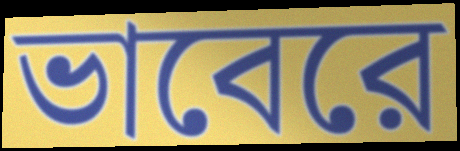
ভাবেরে